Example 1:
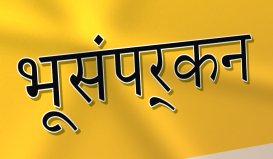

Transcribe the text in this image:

भूसंपर्कन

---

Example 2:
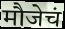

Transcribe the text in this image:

मौजेचं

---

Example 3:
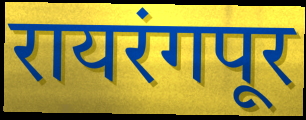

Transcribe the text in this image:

रायरंगपूर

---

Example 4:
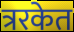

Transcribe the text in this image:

त्ररकेत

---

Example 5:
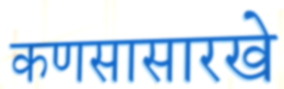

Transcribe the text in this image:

कणसासारखे